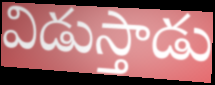
విడుస్తాడు